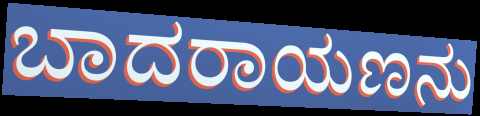
ಬಾದರಾಯಣನು